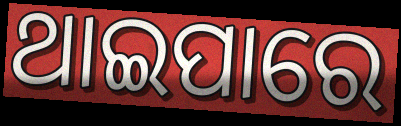
ଥାଇପାରେ